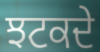
ਝਟਕਦੇ